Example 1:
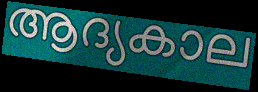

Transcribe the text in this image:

ആദ്യകാല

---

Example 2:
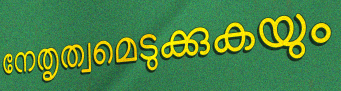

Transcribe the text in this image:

നേതൃത്വമെടുക്കുകയും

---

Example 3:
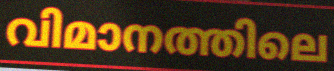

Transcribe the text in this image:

വിമാനത്തിലെ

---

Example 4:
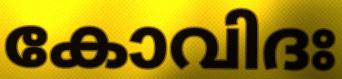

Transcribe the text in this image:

കോവിദഃ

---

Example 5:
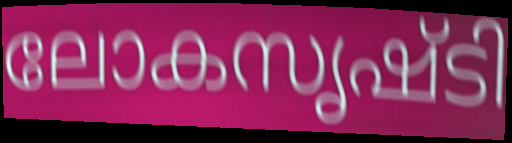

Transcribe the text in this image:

ലോകസൃഷ്ടി